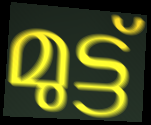
മുട്ട്